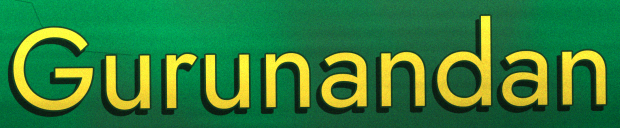
Gurunandan